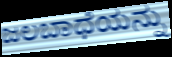
ಜಲಬಾಧೆಯನ್ನು